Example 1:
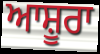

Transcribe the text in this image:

ਆਸ਼ੂਰਾ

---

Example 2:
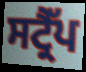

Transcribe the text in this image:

ਸਟ੍ਰੈੱਪ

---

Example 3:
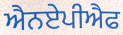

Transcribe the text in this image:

ਐਨਏਪੀਐਫ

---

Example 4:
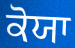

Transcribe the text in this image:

ਕੋਯਾ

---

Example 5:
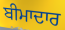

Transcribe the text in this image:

ਬੀਮਾਦਾਰ